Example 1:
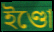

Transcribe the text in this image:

ইণ্ডো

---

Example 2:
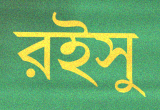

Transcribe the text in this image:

রইসু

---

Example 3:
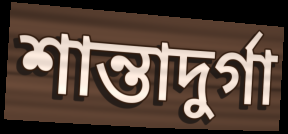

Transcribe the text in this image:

শান্তাদুর্গা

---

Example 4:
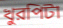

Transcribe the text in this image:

খুরপিটা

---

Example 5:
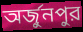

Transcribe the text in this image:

অর্জুনপুর